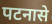
पटनासे